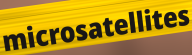
microsatellites